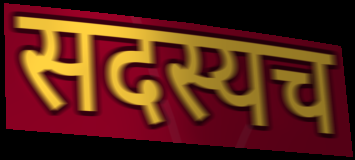
सदस्यच